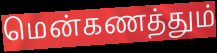
மென்கணத்தும்